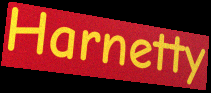
Harnetty